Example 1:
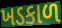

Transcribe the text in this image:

ખડકાળ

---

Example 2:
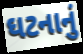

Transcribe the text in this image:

ઘટનાનું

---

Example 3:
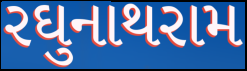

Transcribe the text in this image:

રઘુનાથરામ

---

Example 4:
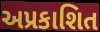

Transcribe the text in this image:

અપ્રકાશિત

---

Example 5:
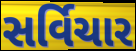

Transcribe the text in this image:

સર્વિચાર